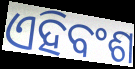
ଏହିବଂଶ